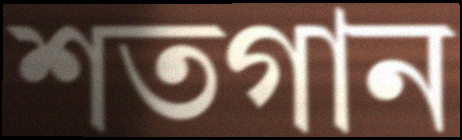
শতগান